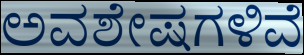
ಅವಶೇಷಗಳಿವೆ